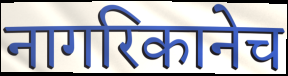
नागरिकानेच